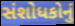
સંશોધકોનું